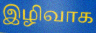
இழிவாக